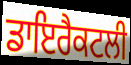
ਡਾਇਰੈਕਟਲੀ